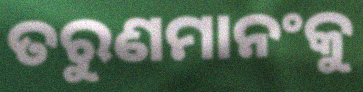
ତରୁଣମାନଂକୁ